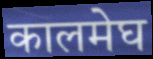
कालमेघ